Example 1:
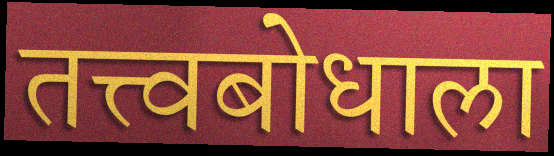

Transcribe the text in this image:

तत्त्वबोधाला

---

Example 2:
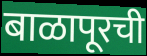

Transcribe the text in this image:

बाळापूरची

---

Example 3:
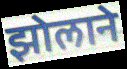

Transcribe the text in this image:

झोलाने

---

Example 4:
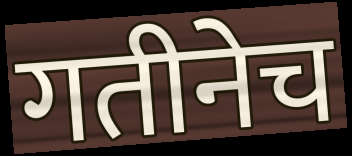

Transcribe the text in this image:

गतीनेच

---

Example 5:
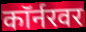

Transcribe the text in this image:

कॉर्नरवर